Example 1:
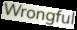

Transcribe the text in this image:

Wrongful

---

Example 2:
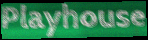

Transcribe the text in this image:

Playhouse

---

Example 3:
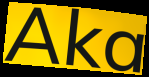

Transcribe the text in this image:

Aka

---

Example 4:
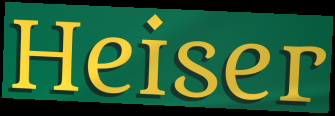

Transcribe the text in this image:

Heiser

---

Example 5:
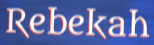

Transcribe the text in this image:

Rebekah